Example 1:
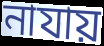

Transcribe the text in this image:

নাযায়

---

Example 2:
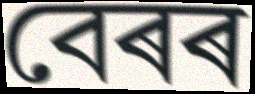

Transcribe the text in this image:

বেৰৰ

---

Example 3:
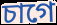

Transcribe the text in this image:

চাগে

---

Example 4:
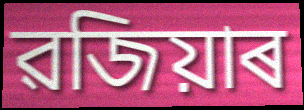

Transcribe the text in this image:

ৱজিয়াৰ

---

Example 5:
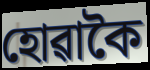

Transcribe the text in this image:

হোৱাকৈ